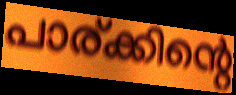
പാര്ക്കിന്റെ